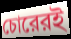
চোরেরই